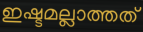
ഇഷ്ടമല്ലാത്തത്